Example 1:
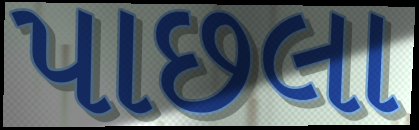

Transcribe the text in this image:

પાછલા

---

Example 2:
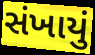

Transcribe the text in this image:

સંખાયું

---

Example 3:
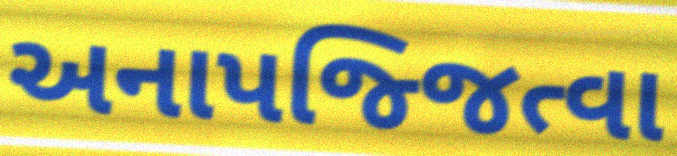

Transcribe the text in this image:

અનાપજ્જિત્વા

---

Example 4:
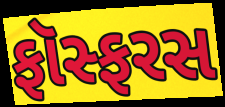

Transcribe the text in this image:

ફૉસ્ફરસ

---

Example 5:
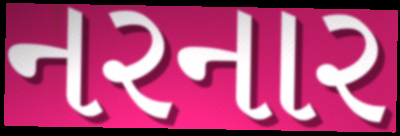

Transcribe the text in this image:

નરનાર